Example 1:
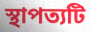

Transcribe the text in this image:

স্থাপত্যটি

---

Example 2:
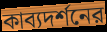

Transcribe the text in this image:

কাব্যদর্শনের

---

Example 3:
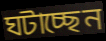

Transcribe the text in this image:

ঘটাচ্ছেন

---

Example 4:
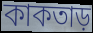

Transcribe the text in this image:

কাকতাড়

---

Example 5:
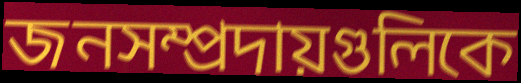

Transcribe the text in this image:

জনসম্প্রদায়গুলিকে